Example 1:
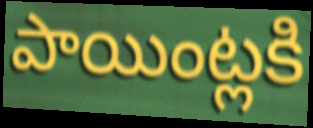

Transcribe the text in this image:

పాయింట్లకి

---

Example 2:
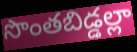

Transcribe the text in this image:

సొంతబిడ్డల్లా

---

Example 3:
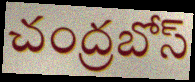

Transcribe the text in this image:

చంద్రబోస్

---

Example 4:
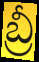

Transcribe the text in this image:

బ్రీ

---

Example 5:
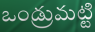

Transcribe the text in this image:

ఒండ్రుమట్టి